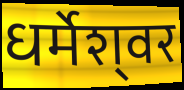
धर्मेश्वर